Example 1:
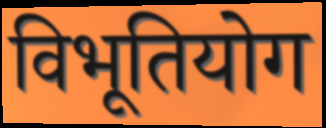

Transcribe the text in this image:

विभूतियोग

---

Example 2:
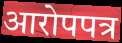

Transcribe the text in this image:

आरोपपत्र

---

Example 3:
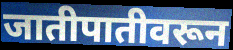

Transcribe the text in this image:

जातीपातीवरून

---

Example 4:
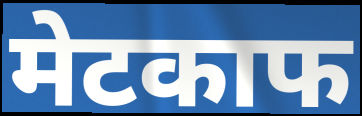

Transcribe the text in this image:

मेटकाफ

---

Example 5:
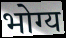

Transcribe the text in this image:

भोग्य